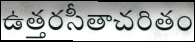
ఉత్తరసీతాచరితం